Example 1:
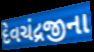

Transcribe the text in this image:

દેવચંદ્રજીના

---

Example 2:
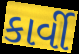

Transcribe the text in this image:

કાર્વી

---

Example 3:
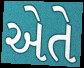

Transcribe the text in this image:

એતે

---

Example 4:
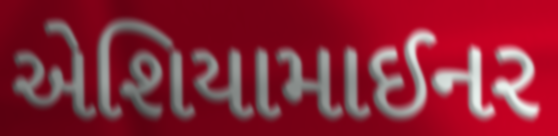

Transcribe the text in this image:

એશિયામાઈનર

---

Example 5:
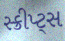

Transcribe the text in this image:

સ્ક્રીપ્ટ્સ